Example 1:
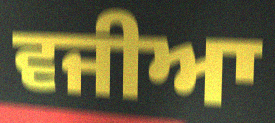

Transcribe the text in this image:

ਵਜੀਆ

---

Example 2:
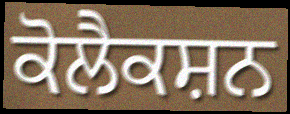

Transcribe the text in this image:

ਕੋਲੈਕਸ਼ਨ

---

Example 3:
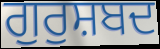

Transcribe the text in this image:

ਗੁਰੁਸ਼ਬਦ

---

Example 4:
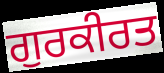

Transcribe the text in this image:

ਗੁਰਕੀਰਤ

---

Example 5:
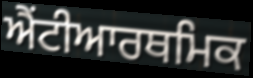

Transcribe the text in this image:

ਐਂਟੀਆਰਥਮਿਕ